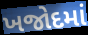
ખજોદમાં